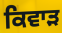
ਕਿਵਾੜ